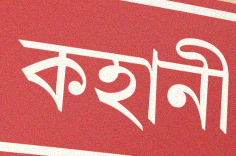
কহানী